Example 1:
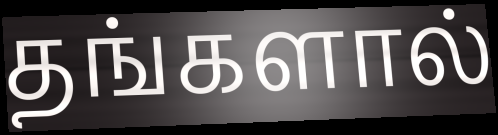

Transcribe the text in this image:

தங்களால்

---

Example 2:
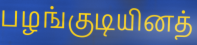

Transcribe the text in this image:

பழங்குடியினத்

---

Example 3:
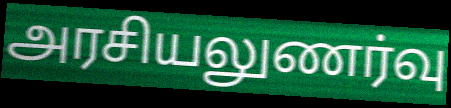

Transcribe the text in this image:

அரசியலுணர்வு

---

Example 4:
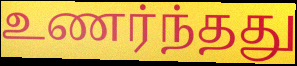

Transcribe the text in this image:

உணர்ந்தது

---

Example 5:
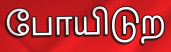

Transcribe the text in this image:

போயிடுற